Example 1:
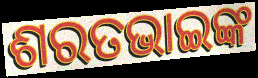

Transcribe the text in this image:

ଶରତଭାଇଙ୍କ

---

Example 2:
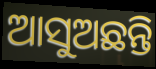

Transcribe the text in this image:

ଆସୁଅଛନ୍ତି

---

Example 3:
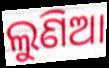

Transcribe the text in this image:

ଲୁଣିଆ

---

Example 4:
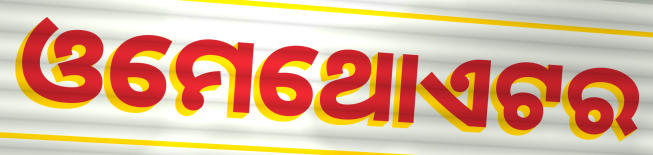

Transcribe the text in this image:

ଓମେଥୋଏଟର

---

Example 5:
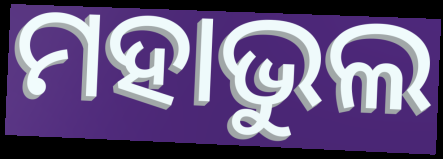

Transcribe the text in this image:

ମହାଭୁଲ